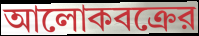
আলোকবক্রের